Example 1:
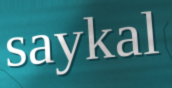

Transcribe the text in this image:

saykal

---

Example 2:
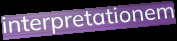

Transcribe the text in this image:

interpretationem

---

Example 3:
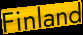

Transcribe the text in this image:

Finland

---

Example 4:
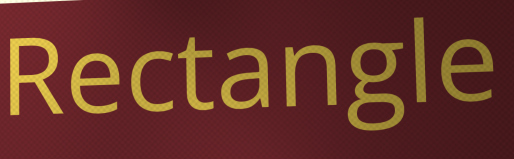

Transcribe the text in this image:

Rectangle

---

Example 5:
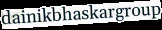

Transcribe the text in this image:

dainikbhaskargroup